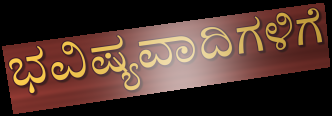
ಭವಿಷ್ಯವಾದಿಗಳಿಗೆ